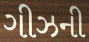
ગીઝની